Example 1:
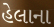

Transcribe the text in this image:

હેલાના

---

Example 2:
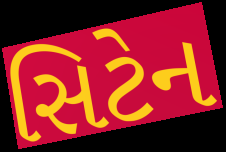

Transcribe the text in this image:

સિટેન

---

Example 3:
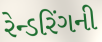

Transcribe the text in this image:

રેન્ડરિંગની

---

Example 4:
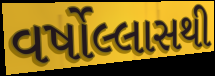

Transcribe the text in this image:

વર્ષોલ્લાસથી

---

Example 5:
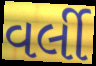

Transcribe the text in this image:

વર્લી